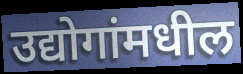
उद्योगांमधील